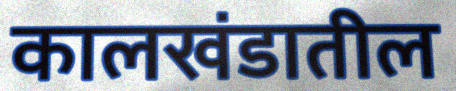
कालखंडातील